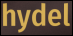
hydel